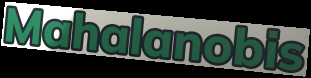
Mahalanobis